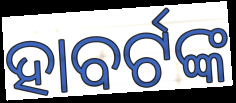
ହାବର୍ଟଙ୍କ